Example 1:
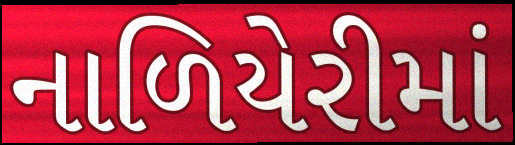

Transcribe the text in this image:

નાળિયેરીમાં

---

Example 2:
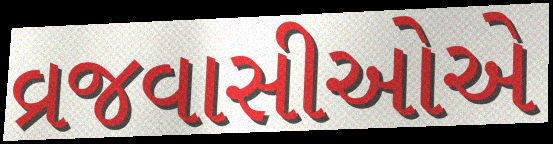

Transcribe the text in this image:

વ્રજવાસીઓએ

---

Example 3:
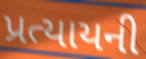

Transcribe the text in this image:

પ્રત્યાયની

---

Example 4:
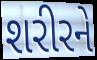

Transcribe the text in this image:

શરીરને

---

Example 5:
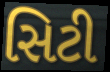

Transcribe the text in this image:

સિટી